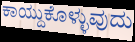
ಕಾಯ್ದುಕೊಳ್ಳುವುದು